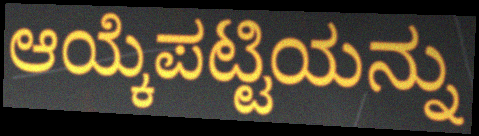
ಆಯ್ಕೆಪಟ್ಟಿಯನ್ನು